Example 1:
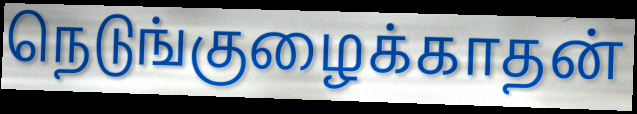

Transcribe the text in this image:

நெடுங்குழைக்காதன்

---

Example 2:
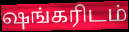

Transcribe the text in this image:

ஷங்கரிடம்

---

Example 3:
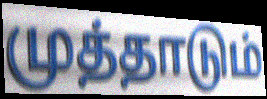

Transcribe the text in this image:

முத்தாடும்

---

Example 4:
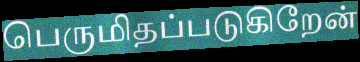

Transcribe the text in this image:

பெருமிதப்படுகிறேன்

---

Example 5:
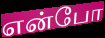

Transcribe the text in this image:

என்போ